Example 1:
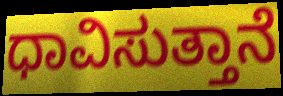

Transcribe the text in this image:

ಧಾವಿಸುತ್ತಾನೆ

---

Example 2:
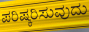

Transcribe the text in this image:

ಪರಿಷ್ಕರಿಸುವುದು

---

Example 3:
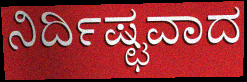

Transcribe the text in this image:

ನಿರ್ದಿಷ್ಟವಾದ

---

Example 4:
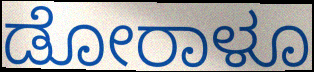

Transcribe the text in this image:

ಡೋರಾಳೂ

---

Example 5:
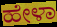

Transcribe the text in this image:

ಹೇಳಾ